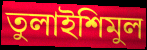
তুলাইশিমুল